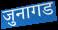
जुनागड